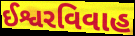
ઈશ્વરવિવાહ